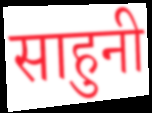
साहुनी